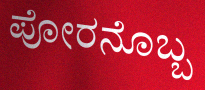
ಪೋರನೊಬ್ಬ